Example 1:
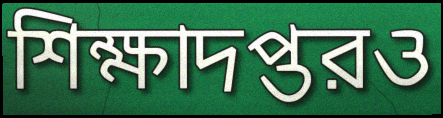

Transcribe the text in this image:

শিক্ষাদপ্তরও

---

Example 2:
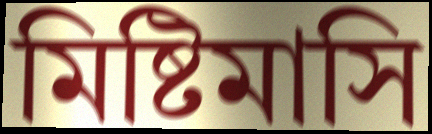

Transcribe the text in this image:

মিষ্টিমাসি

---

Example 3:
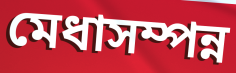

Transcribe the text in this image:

মেধাসম্পন্ন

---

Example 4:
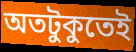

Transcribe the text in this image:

অতটুকুতেই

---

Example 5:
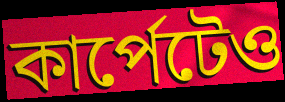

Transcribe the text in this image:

কার্পেটেও